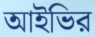
আইভির